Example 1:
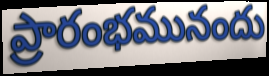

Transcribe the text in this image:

ప్రారంభమునందు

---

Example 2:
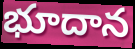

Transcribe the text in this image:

భూదాన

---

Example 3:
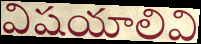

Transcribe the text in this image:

విషయాలివి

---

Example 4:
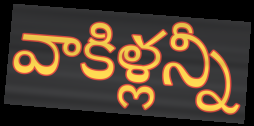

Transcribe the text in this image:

వాకిళ్లన్నీ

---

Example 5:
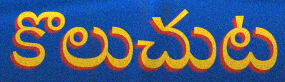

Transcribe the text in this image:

కొలుచుట